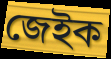
জেইক